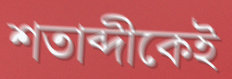
শতাব্দীকেই